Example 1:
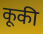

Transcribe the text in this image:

कूकी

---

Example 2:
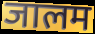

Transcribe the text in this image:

जालम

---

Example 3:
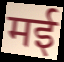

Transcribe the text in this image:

मई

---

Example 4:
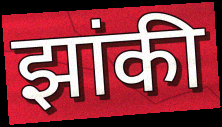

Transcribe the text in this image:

झांकी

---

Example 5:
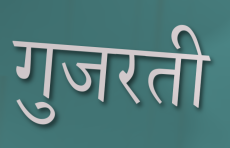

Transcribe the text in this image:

गुजरती